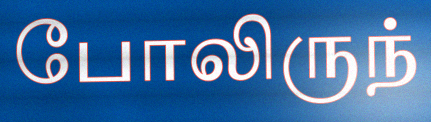
போலிருந்